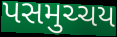
પસમુચ્ચય